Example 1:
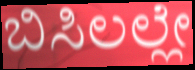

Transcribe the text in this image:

ಬಿಸಿಲಲ್ಲೇ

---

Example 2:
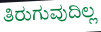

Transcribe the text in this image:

ತಿರುಗುವುದಿಲ್ಲ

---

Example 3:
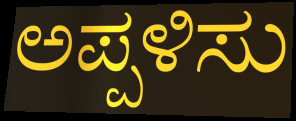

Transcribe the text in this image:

ಅಪ್ಪಳಿಸು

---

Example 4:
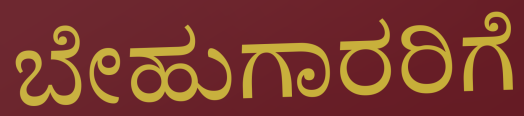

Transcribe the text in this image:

ಬೇಹುಗಾರರಿಗೆ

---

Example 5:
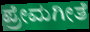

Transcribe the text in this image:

ಪ್ರೇಮಗೀತೆ